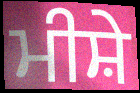
ਮੀਸ਼ੇ